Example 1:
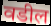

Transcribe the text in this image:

वडील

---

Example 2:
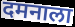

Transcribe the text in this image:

दमनाला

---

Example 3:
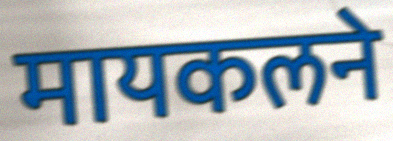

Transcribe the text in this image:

मायकलने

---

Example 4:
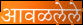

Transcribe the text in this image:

आवळलेले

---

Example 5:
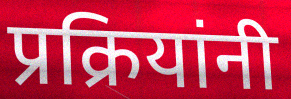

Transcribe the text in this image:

प्रक्रियांनी